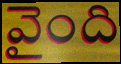
వైంది